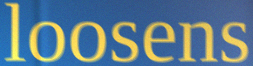
loosens